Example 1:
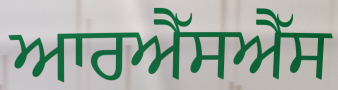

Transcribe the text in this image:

ਆਰਐੱਸਐੱਸ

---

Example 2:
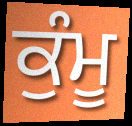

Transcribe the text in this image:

ਕੁੰਮੂ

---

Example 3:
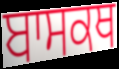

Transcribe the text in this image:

ਬਾਸਕਥ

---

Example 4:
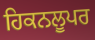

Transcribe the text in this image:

ਹਿਕਨਲੂਪਰ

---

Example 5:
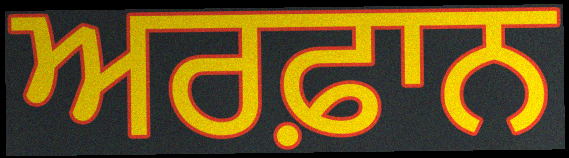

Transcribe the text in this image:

ਅਰਫ਼ਾਨ